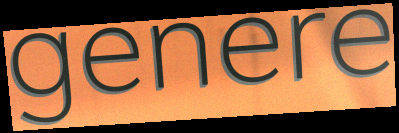
genere